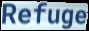
Refuge